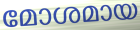
മോശമായ